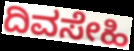
ದಿವಸೇಹಿ